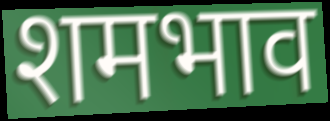
शमभाव